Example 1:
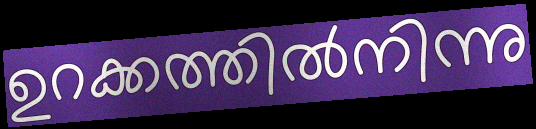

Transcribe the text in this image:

ഉറക്കത്തിൽനിന്നു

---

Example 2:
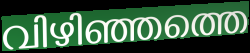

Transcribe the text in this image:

വിഴിഞ്ഞത്തെ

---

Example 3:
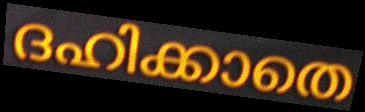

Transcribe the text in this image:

ദഹിക്കാതെ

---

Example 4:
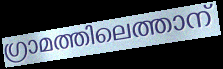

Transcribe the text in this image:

ഗ്രാമത്തിലെത്താന്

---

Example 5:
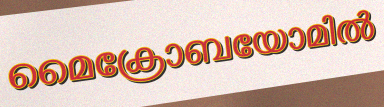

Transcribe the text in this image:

മൈക്രോബയോമിൽ